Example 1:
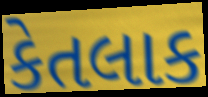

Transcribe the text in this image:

કેતલાક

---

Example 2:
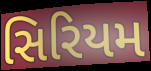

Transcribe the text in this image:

સિરિયમ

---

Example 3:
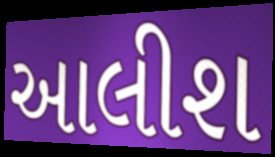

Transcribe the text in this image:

આલીશ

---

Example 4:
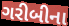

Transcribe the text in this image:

ગરીબીના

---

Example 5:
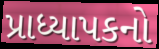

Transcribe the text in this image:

પ્રાધ્યાપકનો